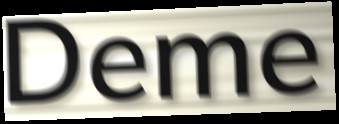
Deme